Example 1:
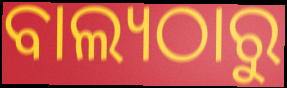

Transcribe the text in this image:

ବାଲ୍ୟଠାରୁ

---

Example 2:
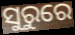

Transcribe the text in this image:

ସୁରୁରେ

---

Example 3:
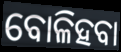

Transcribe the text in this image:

ବୋଳିହବା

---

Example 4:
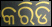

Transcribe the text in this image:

କରିଡି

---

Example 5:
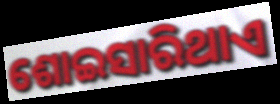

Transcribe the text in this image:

ଶୋଇସାରିଥାଏ